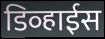
डिव्हाईस